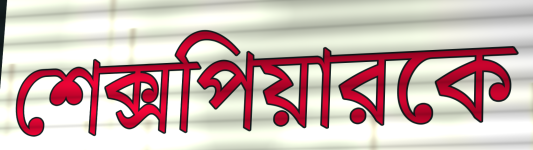
শেক্সপিয়ারকে